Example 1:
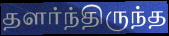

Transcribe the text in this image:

தளர்ந்திருந்த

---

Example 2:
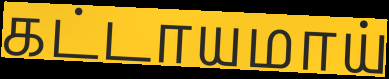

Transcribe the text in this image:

கட்டாயமாய்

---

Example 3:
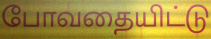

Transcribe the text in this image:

போவதையிட்டு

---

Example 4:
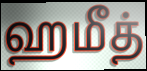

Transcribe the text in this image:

ஹமீத்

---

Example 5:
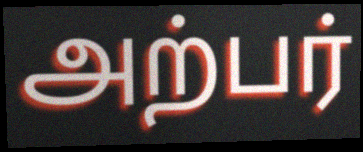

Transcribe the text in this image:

அற்பர்